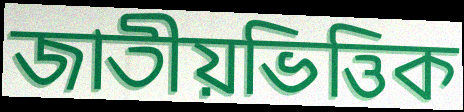
জাতীয়ভিত্তিক